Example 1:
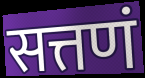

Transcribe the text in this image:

सत्तणं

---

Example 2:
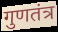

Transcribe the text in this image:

गुणतंत्र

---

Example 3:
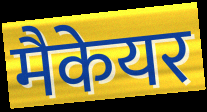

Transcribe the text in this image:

मैकेयर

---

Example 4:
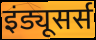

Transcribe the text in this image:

इंड्यूसर्स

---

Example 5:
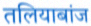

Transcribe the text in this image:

तलियाबांज